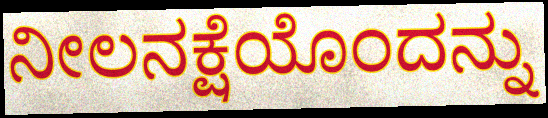
ನೀಲನಕ್ಷೆಯೊಂದನ್ನು